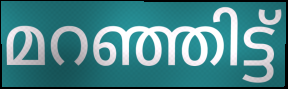
മറഞ്ഞിട്ട്